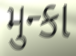
મુન્કા